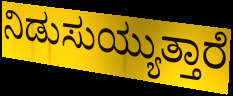
ನಿಡುಸುಯ್ಯುತ್ತಾರೆ